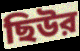
ছিউর